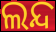
ଲନ୍ଦ